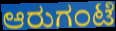
ಆರುಗಂಟೆ